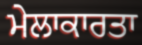
ਮੇਲਾਕਾਰਤਾ